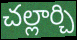
చల్లార్చి